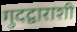
गुदद्वाराशी